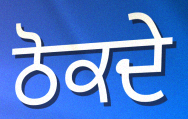
ਠੋਕਦੇ